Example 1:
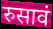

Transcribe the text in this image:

रुसावं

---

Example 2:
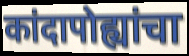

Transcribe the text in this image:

कांदापोह्यांचा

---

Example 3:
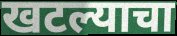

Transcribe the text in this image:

खटल्याचा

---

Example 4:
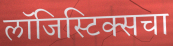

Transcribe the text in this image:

लॉजिस्टिक्सचा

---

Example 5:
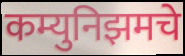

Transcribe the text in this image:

कम्युनिझमचे